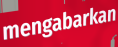
mengabarkan